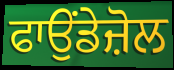
ਫਾਉਂਡੇਜ਼ੋਲ